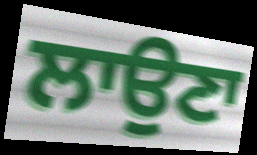
ਲਾਉਣਾ